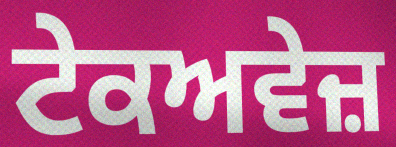
ਟੇਕਅਵੇਜ਼